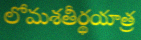
లోమశతీర్థయాత్ర